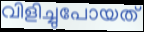
വിളിച്ചുപോയത്